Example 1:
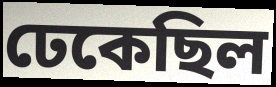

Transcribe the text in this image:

ঢেকেছিল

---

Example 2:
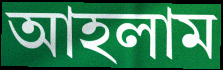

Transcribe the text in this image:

আহলাম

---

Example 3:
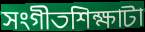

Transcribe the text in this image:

সংগীতশিক্ষাটা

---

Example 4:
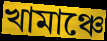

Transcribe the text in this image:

খামাঞ্চে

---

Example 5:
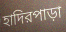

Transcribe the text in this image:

হাদিরপাড়া